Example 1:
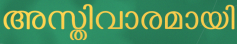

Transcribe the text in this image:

അസ്തിവാരമായി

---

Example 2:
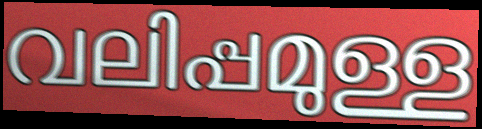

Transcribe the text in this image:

വലിപ്പമുള്ള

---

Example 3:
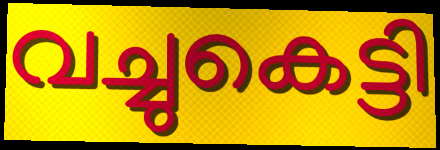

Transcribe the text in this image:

വച്ചുകെട്ടി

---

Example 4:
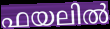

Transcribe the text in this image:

ഫയലിൽ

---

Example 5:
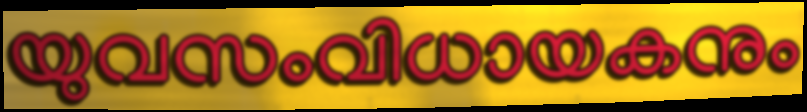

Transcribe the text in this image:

യുവസംവിധായകനും